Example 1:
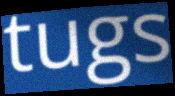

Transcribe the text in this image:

tugs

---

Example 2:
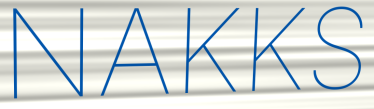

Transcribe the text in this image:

NAKKS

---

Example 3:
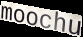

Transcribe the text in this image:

moochu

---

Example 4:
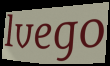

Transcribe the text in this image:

luego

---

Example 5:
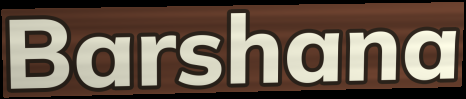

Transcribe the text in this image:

Barshana